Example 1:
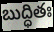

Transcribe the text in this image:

బుద్ధితః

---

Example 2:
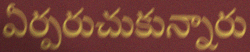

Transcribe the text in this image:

ఏర్పరుచుకున్నారు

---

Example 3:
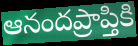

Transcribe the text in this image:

ఆనందప్రాప్తికి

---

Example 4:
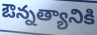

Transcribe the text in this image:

ఔన్నత్యానికి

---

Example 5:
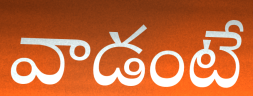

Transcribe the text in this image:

వాడంటే